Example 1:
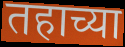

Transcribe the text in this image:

तहाच्या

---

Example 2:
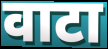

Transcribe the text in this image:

वाटा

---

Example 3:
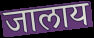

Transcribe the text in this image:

जालाय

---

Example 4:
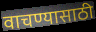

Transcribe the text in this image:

वाचण्यासाठी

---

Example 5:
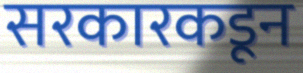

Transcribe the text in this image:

सरकारकडून